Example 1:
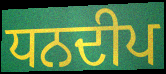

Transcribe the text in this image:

ਧਨਦੀਪ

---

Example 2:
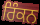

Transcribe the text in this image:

ਰਿੰਕਨ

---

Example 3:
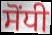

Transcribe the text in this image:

ਸੋਂਧੀ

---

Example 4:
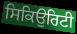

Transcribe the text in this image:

ਸਿਕਿਉਰਿਟੀ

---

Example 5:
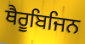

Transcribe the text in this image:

ਥੈਰੂਬਿਜਿਨ